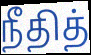
நீதித்